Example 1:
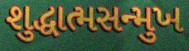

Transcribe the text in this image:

શુદ્ધાત્મસન્મુખ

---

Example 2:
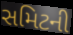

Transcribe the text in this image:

સમિટની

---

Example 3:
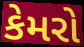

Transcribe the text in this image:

કેમરો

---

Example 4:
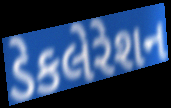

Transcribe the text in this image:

ડેકલેરેશન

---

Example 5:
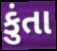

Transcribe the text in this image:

કુંતા